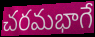
చరమభాగే